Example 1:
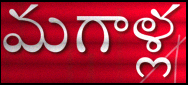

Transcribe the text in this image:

మగాళ్ల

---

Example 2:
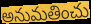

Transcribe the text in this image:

అనుమతించు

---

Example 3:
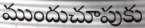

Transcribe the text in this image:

ముందుచూపుకు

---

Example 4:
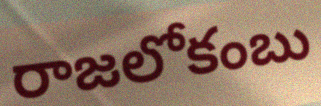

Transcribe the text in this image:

రాజలోకంబు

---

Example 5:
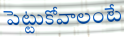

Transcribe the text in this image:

పెట్టుకోవాలంటే